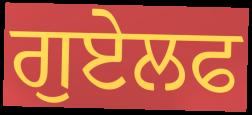
ਗੁਏਲਫ